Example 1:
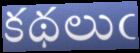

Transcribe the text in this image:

కథలుఁ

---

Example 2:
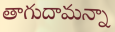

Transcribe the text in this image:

తాగుదామన్నా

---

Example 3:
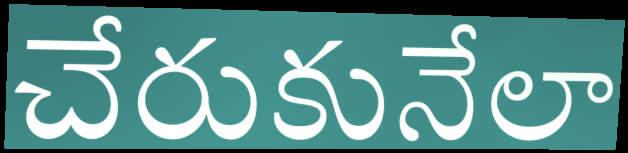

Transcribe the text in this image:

చేరుకునేలా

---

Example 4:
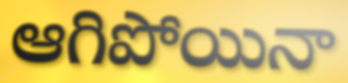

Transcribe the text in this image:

ఆగిపోయినా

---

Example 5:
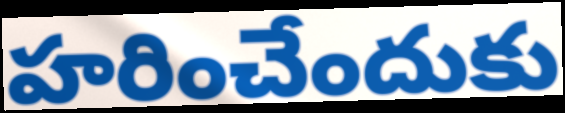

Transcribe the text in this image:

హరించేందుకు